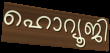
ഹൊറ്യൂജി